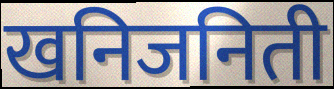
खनिजनिती